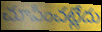
చూపించట్లేదు